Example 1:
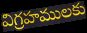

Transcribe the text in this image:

విగ్రహములకు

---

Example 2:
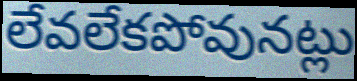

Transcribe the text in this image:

లేవలేకపోవునట్లు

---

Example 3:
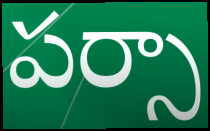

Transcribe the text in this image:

పర్సా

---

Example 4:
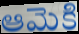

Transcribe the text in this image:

ఆమెకి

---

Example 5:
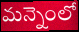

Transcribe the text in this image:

మన్నెంలో